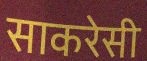
साकरेसी